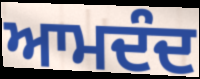
ਆਮਦੰਦ